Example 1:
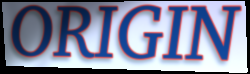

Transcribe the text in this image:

ORIGIN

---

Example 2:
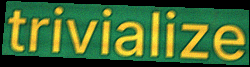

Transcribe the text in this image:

trivialize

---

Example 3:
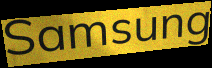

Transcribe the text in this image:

Samsung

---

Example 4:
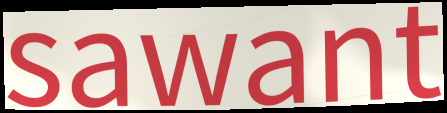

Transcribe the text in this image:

sawant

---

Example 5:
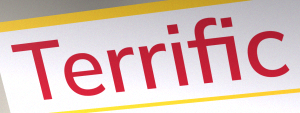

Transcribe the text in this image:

Terrific